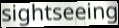
sightseeing